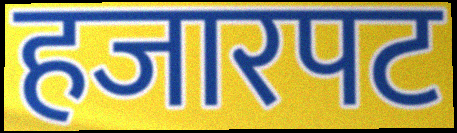
हजारपट